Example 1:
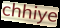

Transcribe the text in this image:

chhiye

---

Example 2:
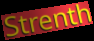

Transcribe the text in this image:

Strenth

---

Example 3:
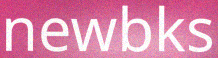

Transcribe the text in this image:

newbks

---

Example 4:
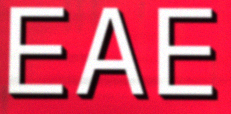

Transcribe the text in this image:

EAE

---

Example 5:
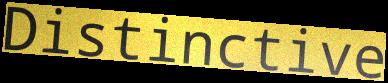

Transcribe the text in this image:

Distinctive